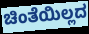
ಚಿಂತೆಯಿಲ್ಲದ